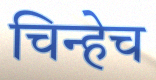
चिन्हेच